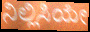
ನಿಲ್ಲಿಸಿಯೇ